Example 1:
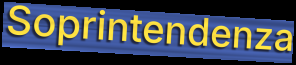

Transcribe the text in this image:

Soprintendenza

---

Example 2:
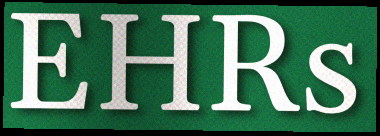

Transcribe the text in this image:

EHRs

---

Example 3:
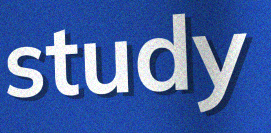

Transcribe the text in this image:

study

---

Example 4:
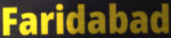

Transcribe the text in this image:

Faridabad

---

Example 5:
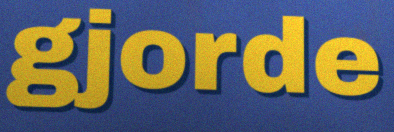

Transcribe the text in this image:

gjorde